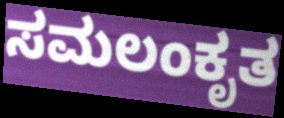
ಸಮಲಂಕೃತ